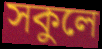
সকুলে